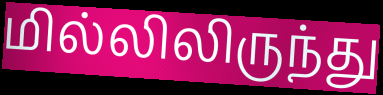
மில்லிலிருந்து